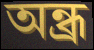
অন্ধ্র